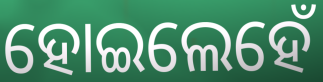
ହୋଇଲେହେଁ